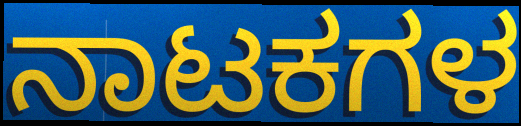
ನಾಟಕಗಳ